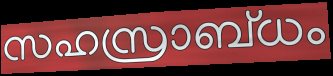
സഹസ്രാബ്ധം